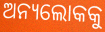
ଅନ୍ୟଲୋକକୁ